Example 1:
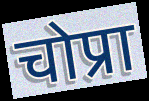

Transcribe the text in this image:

चोप्रा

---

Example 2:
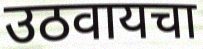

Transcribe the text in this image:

उठवायचा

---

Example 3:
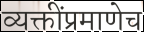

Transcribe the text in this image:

व्यक्तींप्रमाणेच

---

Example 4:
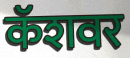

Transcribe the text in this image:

कॅशवर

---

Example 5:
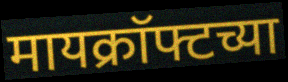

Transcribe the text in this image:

मायक्रॉफ्टच्या